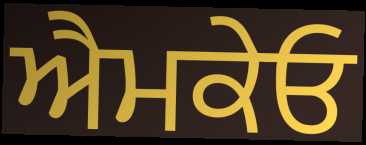
ਐਮਕੇਓ